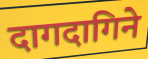
दागदागिने